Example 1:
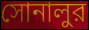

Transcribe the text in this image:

সোনালুর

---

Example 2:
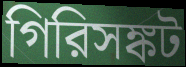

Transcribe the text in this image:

গিরিসঙ্কট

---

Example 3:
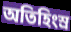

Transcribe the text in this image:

অতিহিংস্র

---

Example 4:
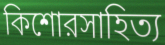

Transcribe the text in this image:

কিশোরসাহিত্য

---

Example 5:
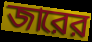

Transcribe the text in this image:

জারের